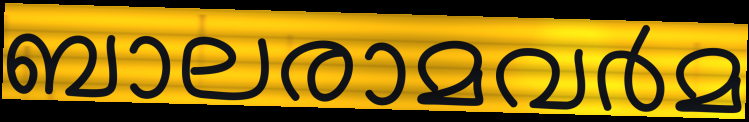
ബാലരാമവർമ